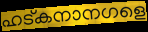
ഹട്കനാനഗളെ